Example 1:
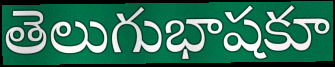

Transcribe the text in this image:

తెలుగుభాషకూ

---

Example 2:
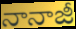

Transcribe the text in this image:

నానాజీ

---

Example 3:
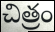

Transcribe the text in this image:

చిత్రం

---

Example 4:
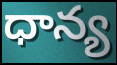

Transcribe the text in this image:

ధాన్య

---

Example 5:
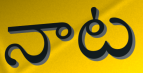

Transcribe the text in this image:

నాట